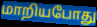
மாறியபோது